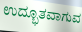
ಉದ್ಭೂತವಾಗುವ